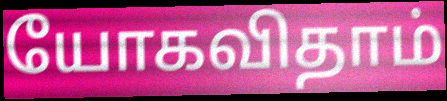
யோகவிதாம்